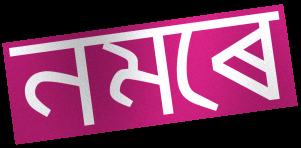
নমৰে